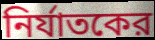
নির্যাতকের